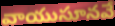
వాయుసూనవే